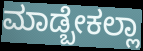
ಮಾಡ್ಬೇಕಲ್ಲಾ